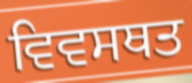
ਵਿਵਸਥਤ